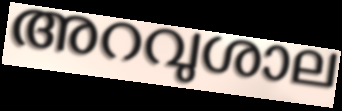
അറവുശാല